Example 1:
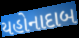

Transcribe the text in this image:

યહોનાદાબ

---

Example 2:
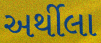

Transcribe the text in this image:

અર્થીલા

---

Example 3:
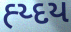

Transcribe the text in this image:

હ્ય્દય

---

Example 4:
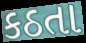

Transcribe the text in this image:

કઠતા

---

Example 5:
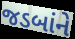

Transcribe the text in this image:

જડબાંને